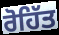
ਰੋਹਿੱਤ